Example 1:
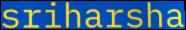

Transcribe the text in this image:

sriharsha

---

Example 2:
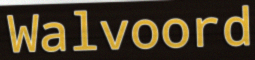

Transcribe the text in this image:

Walvoord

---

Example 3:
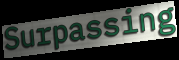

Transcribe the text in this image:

Surpassing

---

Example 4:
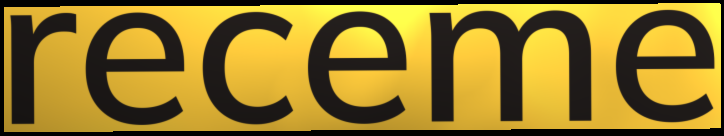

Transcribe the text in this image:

receme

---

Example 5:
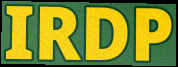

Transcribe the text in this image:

IRDP